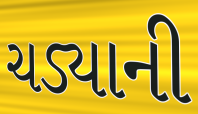
ચડ્યાની